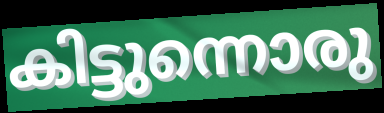
കിട്ടുന്നൊരു